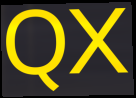
QX